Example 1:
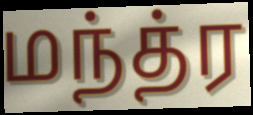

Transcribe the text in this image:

மந்த்ர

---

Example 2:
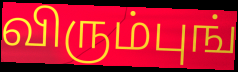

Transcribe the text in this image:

விரும்புங்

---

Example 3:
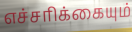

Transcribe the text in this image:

எச்சரிக்கையும்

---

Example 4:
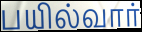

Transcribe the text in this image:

பயில்வார்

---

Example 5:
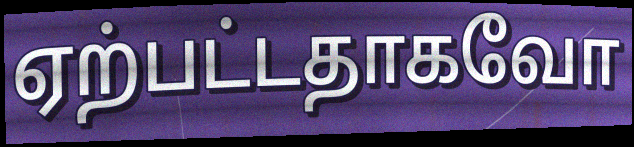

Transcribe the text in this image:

ஏற்பட்டதாகவோ